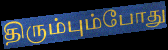
திரும்பும்போது